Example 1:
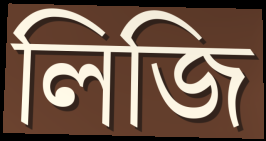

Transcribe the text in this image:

লিজি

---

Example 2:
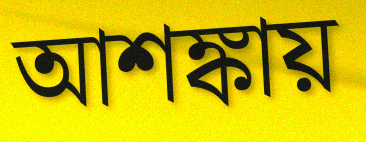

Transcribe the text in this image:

আশঙ্কায়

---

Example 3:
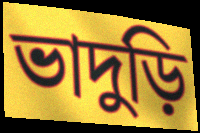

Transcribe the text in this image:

ভাদুড়ি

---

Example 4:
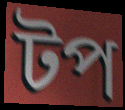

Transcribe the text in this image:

টপ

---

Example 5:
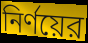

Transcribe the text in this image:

নির্ণয়ের